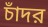
চাঁদর